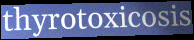
thyrotoxicosis